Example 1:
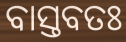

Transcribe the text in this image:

ବାସ୍ତବତଃ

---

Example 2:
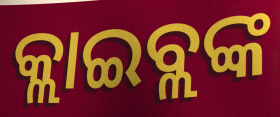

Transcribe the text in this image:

କ୍ଲାଇବ୍ଲଙ୍କ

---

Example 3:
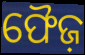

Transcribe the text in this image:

ଫୈଜ଼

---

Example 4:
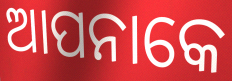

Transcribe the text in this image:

ଆପନାକେ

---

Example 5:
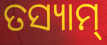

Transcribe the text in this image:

ତସ୍ୟାମ୍